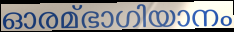
ഓരമ്ഭാഗിയാനം